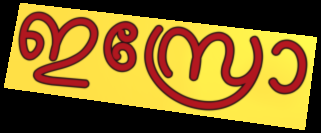
ഇസ്രോ